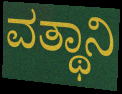
ವತ್ಥಾನಿ